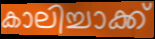
കാലിച്ചാക്ക്